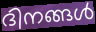
ദിനങ്ങൾ